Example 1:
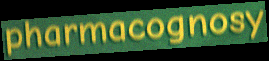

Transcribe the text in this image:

pharmacognosy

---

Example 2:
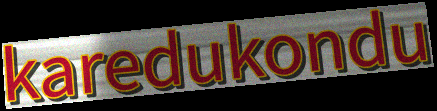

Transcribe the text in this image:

karedukondu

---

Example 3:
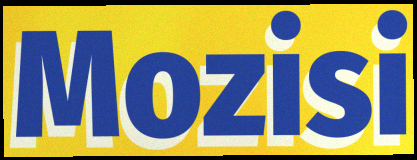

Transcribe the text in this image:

Mozisi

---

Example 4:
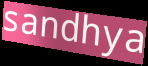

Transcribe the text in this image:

sandhya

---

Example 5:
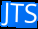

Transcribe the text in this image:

JTS